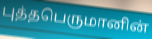
புத்தபெருமானின்